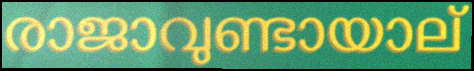
രാജാവുണ്ടായാല്